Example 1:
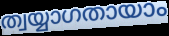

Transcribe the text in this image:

ത്വയ്യാഗതായാം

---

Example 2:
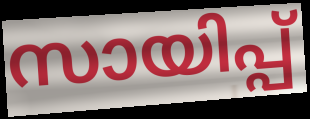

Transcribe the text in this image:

സായിപ്പ്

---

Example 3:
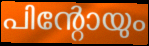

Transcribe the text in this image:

പിന്റോയും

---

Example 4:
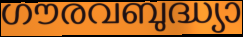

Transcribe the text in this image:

ഗൗരവബുദ്ധ്യാ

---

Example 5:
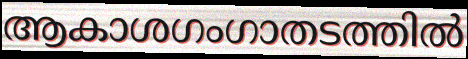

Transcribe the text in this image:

ആകാശഗംഗാതടത്തിൽ